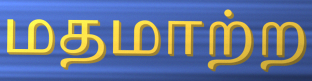
மதமாற்ற